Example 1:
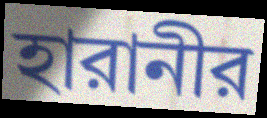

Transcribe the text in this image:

হারানীর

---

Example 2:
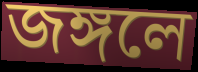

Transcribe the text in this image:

জঙ্গলে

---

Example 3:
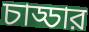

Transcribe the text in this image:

চাড্ডার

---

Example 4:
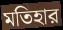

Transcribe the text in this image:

মতিহার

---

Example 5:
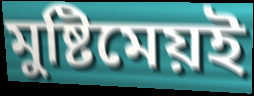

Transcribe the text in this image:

মুষ্টিমেয়ই